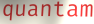
quantam